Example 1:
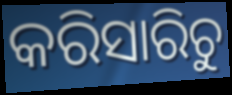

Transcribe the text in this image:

କରିସାରିଚୁ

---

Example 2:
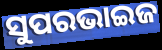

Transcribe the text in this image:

ସୁପରଭାଇଜ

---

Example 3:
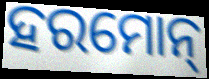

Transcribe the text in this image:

ହରମୋନ୍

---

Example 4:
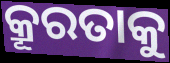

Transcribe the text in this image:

କ୍ରୂରତାକୁ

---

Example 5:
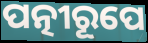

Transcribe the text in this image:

ପତ୍ନୀରୂପେ